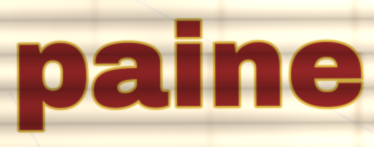
paine